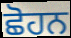
ਛੋਹਨ